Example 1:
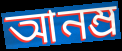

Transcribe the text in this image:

আনম্র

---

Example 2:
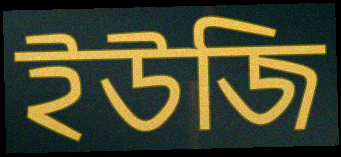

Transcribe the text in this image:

ইউজি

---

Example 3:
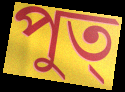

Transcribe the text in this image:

পুত্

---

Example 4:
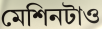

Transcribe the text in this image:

মেশিনটাও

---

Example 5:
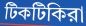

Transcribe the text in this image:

টিকটিকিরা